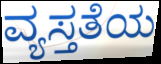
ವ್ಯಸ್ತತೆಯ